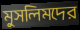
মুসলিমদের